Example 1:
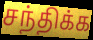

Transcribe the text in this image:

சந்திக்க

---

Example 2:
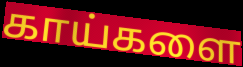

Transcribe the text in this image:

காய்களை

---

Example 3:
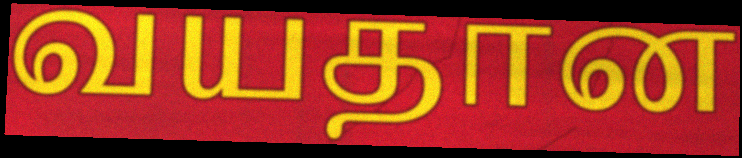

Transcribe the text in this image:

வயதான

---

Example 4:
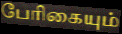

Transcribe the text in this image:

பேரிகையும்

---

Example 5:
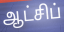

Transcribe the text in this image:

ஆட்சிப்